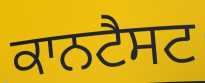
ਕਾਨਟੈਸਟ